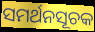
ସମର୍ଥନସୂଚକ